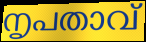
നൃപതാവ്